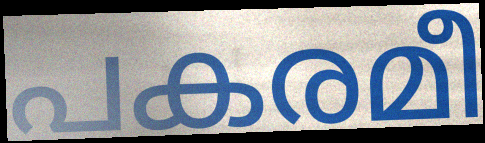
പകരമീ